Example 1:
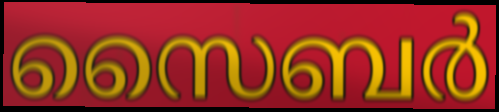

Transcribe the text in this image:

സൈബർ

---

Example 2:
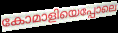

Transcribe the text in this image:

കോമാളിയെപ്പോലെ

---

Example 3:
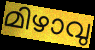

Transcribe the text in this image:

മിഴാവു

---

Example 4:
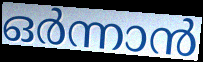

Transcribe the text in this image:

ഒർന്നാൻ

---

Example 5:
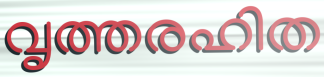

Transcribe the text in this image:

വൃത്തരഹിത